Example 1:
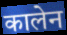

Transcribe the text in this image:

कालेन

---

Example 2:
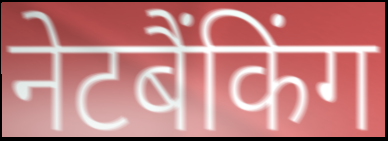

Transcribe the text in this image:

नेटबैंकिंग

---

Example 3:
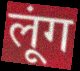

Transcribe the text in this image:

लूंग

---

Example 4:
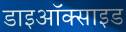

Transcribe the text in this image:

डाइऑक्साइड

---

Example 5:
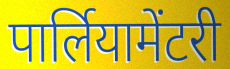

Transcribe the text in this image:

पार्लियामेंटरी